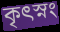
কৃৎস্নং